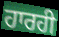
ਹਾਰਹੀ